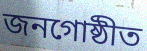
জনগোষ্ঠীত